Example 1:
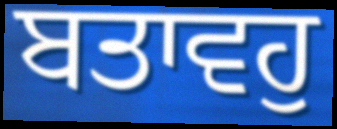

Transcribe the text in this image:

ਬਤਾਵਹੁ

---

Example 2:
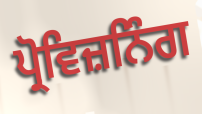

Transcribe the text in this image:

ਪ੍ਰੋਵਿਜ਼ਨਿੰਗ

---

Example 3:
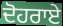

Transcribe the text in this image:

ਦੋਹਰਾਏ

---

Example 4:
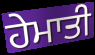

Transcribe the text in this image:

ਹੇਮਾਤੀ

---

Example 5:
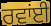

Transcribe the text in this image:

ਰਵਾਂਈ